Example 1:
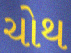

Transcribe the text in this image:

ચોથ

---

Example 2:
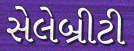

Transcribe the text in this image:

સેલેબ્રીટી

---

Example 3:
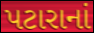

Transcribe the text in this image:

પટારાનાં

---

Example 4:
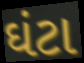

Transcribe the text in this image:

ઘંટા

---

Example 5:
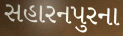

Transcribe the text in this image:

સહારનપુરના